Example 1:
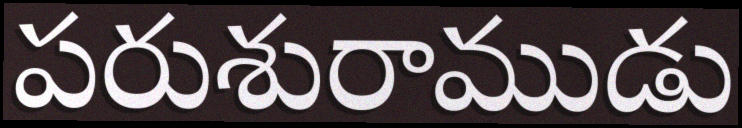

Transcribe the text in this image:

పరుశురాముడు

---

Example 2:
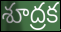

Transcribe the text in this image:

శూద్రక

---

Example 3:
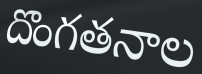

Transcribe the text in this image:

దొంగతనాల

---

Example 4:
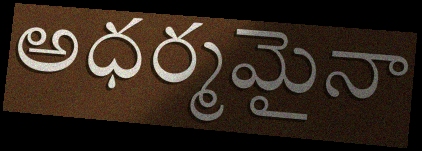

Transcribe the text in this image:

అధర్మమైనా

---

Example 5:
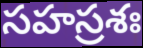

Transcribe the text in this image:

సహస్రశః